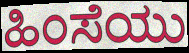
ಹಿಂಸೆಯು